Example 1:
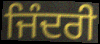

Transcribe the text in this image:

ਜਿੰਦਰੀ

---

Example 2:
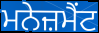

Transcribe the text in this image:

ਮਨੇਜ਼ਮੈਂਟ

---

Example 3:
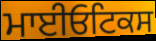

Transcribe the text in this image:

ਮਾਈਓਟਿਕਸ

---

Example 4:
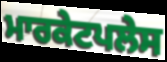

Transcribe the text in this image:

ਮਾਰਕੇਟਪਲੇਸ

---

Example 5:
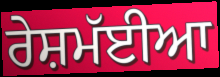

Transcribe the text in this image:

ਰੇਸ਼ਮੱਈਆ